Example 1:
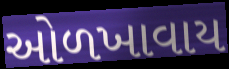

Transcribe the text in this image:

ઓળખાવાય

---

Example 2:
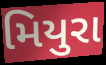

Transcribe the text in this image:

મિયુરા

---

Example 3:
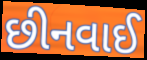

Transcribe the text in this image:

છીનવાઈ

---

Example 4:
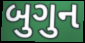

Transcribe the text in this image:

બુગુન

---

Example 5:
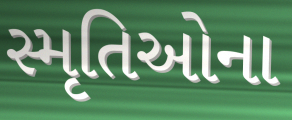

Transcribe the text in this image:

સ્મૃતિઓના